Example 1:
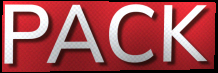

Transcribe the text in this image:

PACK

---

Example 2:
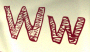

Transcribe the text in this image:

Ww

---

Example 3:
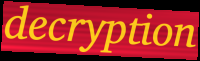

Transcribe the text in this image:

decryption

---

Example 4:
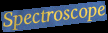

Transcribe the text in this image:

Spectroscope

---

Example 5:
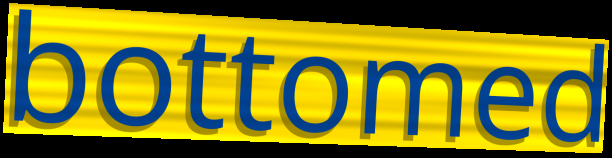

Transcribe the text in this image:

bottomed